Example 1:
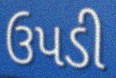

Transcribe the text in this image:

ઉપડી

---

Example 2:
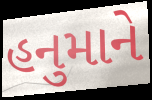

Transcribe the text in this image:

હનુમાને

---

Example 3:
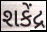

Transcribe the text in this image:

શકેંદ્ર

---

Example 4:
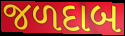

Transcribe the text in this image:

જળદાબ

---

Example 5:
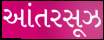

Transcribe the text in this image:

આંતરસૂઝ